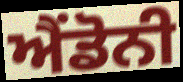
ਐਂਡੋਨੀ